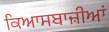
ਕਿਆਸਬਾਜ਼ੀਆਂ